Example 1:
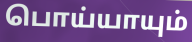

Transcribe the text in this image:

பொய்யாயும்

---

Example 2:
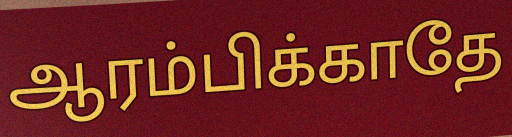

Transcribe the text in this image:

ஆரம்பிக்காதே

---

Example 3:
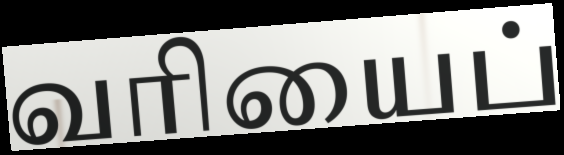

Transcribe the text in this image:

வரியைப்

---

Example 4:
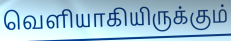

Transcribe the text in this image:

வெளியாகியிருக்கும்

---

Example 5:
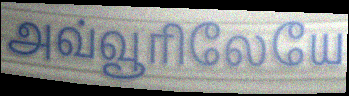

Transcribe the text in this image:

அவ்வூரிலேயே